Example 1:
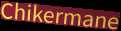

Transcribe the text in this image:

Chikermane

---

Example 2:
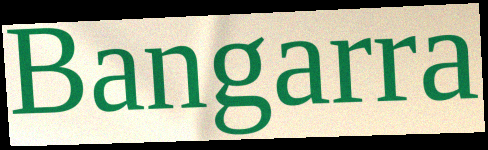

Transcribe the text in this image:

Bangarra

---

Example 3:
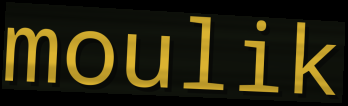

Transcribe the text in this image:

moulik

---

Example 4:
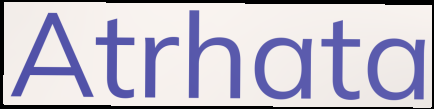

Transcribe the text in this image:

Atrhata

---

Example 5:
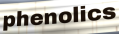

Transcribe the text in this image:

phenolics